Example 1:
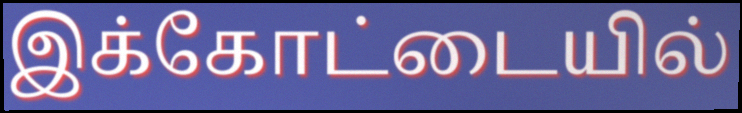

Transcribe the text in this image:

இக்கோட்டையில்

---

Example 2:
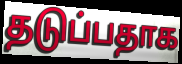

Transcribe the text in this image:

தடுப்பதாக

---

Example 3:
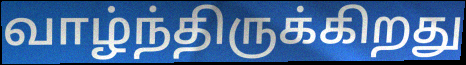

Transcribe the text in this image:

வாழ்ந்திருக்கிறது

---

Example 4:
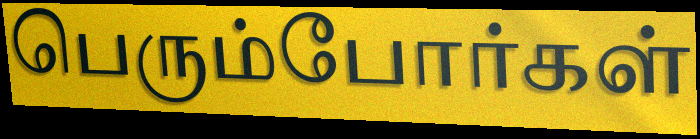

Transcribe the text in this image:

பெரும்போர்கள்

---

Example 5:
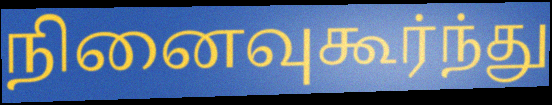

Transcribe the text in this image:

நினைவுகூர்ந்து